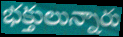
భక్తులున్నారు